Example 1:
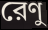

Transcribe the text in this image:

রেণু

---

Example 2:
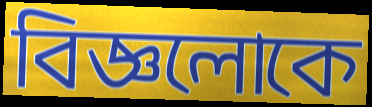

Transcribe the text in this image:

বিজ্ঞলোকে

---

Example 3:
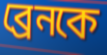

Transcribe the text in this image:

ব্রেনকে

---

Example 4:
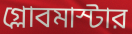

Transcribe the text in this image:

গ্লোবমাস্টার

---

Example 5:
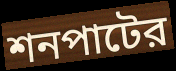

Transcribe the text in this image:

শনপাটের